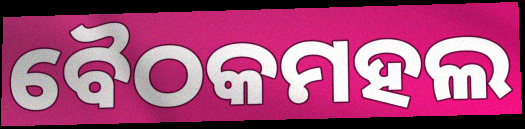
ବୈଠକମହଲ